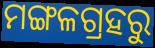
ମଙ୍ଗଳଗ୍ରହରୁ